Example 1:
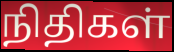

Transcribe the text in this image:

நிதிகள்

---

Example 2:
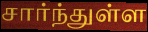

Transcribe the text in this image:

சார்ந்துள்ள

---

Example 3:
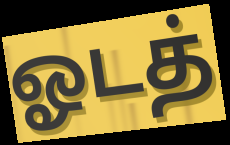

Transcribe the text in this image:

ஓடத்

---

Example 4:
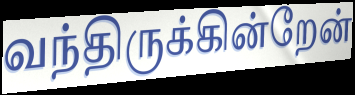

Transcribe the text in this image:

வந்திருக்கின்றேன்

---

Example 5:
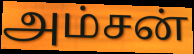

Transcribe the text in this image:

அம்சன்